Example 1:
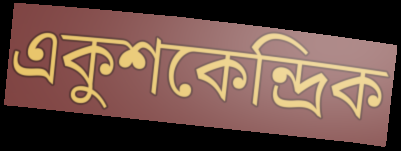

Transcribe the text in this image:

একুশকেন্দ্রিক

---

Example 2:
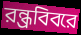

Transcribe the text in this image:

রন্ধ্রবিবরে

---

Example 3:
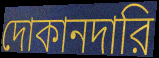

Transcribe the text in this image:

দোকানদারি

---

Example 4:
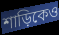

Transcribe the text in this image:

শাড়িকেও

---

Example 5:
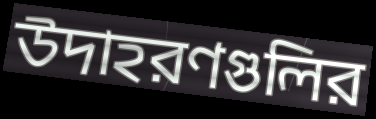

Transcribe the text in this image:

উদাহরণগুলির